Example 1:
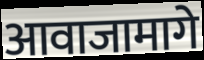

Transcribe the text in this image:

आवाजामागे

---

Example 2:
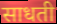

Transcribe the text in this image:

साधती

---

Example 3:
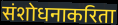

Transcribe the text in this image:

संशोधनाकरिता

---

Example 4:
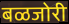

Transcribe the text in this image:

बळजोरी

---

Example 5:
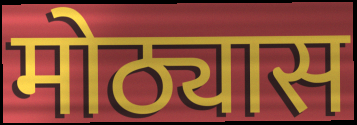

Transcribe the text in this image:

मोठ्यास